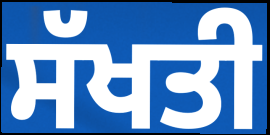
ਸੱਖਤੀ